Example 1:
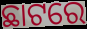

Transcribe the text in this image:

ଛାଟରେ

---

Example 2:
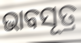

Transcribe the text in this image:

ଭାବସୂତ୍ର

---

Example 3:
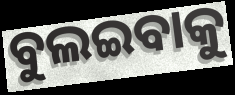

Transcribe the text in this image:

ବୁଲଇବାକୁ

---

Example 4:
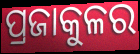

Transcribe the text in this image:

ପ୍ରଜାକୁଳର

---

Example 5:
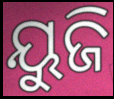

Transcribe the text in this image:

ୟୁଜି